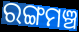
ରଙ୍ଗମଞ୍ଚ